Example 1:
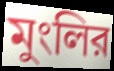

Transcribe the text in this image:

মুংলির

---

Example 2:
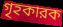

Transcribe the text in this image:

গৃহকারক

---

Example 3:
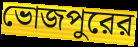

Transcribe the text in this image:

ভোজপুরের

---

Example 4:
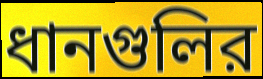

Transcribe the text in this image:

ধানগুলির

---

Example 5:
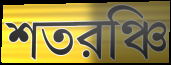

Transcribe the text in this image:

শতরঞ্চি